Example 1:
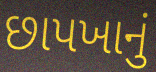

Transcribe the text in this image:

છાપખાનું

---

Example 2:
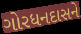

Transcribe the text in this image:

ગોરધનદાસને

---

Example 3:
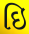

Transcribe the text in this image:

ઇિ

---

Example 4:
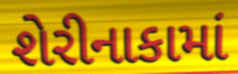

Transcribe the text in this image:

શેરીનાકામાં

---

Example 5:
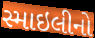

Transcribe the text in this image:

સ્માઇલીનો